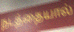
நடத்தையால்